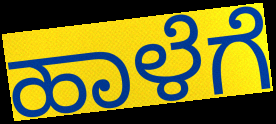
ಹಾಳೆಗೆ